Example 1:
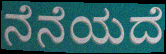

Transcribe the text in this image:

ನೆನೆಯದೆ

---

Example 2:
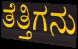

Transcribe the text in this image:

ತೆತ್ತಿಗನು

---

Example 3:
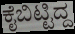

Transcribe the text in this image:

ಕೈಬಿಟ್ಟಿದ್ದ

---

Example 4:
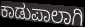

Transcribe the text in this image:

ಕಾಡುಪಾಲಾಗಿ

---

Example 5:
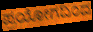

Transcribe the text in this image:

ಪ್ರಯೋಗದಿಂದ